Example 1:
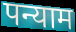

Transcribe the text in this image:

पन्याम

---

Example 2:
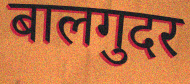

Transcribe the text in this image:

बालगुदर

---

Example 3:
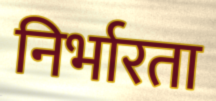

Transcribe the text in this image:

निर्भारता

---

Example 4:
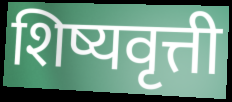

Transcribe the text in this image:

शिष्यवृत्ती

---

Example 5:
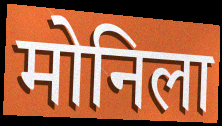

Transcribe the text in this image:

मोनिला